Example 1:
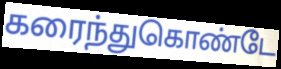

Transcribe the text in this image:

கரைந்துகொண்டே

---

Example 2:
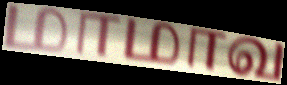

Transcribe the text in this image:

மாமாவ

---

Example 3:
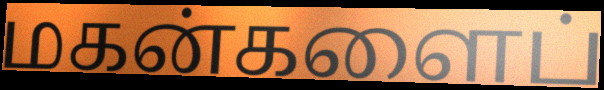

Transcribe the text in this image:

மகன்களைப்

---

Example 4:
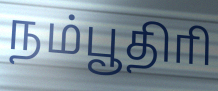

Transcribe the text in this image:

நம்பூதிரி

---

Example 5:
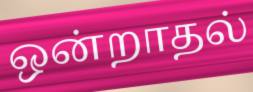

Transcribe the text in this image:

ஒன்றாதல்